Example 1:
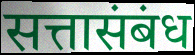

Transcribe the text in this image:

सत्तासंबंध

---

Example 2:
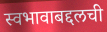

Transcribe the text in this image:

स्वभावाबद्दलची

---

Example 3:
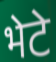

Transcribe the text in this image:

भेटे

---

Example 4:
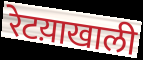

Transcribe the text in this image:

रेटय़ाखाली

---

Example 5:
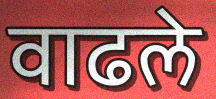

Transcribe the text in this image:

वाढले